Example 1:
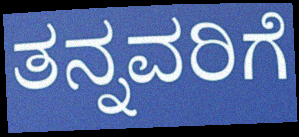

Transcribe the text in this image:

ತನ್ನವರಿಗೆ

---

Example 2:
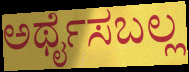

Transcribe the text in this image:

ಅರ್ಥೈಸಬಲ್ಲ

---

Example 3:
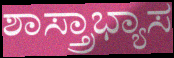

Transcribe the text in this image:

ಶಾಸ್ತ್ರಾಭ್ಯಾಸ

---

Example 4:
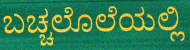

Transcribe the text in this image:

ಬಚ್ಚಲೊಲೆಯಲ್ಲಿ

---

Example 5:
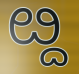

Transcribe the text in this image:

ೞ್ದ